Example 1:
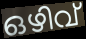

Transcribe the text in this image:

ഒഴിവ്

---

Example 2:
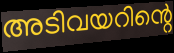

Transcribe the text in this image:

അടിവയറിന്റെ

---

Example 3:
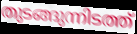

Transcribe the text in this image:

തുടങ്ങുന്നിടത്ത്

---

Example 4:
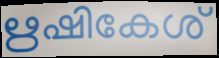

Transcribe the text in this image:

ഋഷികേശ്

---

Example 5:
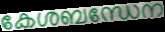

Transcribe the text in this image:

കേശബന്ധേന